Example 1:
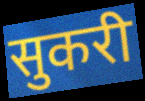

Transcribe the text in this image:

सुकरी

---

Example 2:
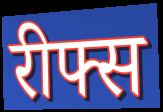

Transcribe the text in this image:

रीफ्स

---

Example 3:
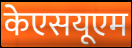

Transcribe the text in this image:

केएसयूएम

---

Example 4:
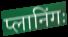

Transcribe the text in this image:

प्लानिंगः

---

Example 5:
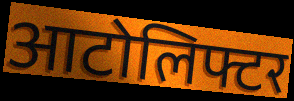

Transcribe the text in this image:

आटोलिफ्टर